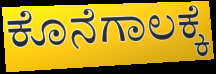
ಕೊನೆಗಾಲಕ್ಕೆ